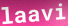
laavi